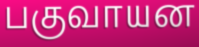
பகுவாயன